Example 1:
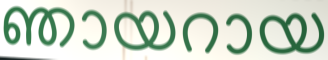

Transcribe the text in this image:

ഞായറായ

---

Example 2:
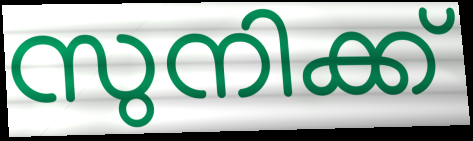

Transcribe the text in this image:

സുനിക്ക്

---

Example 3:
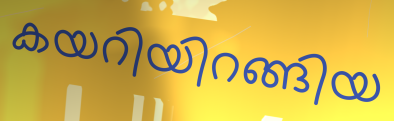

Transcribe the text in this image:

കയറിയിറങ്ങിയ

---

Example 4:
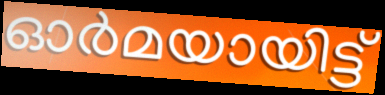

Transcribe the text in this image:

ഓർമയായിട്ട്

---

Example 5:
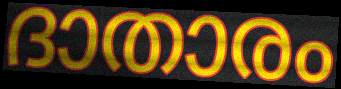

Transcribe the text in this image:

ദാതാരം